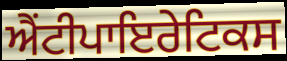
ਐਂਟੀਪਾਇਰੇਟਿਕਸ